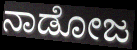
ನಾಡೋಜ